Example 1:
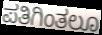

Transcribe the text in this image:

ಪತಿಗಿಂತಲೂ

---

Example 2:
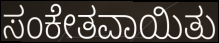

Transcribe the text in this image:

ಸಂಕೇತವಾಯಿತು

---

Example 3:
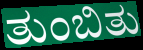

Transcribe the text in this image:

ತುಂಬಿತು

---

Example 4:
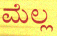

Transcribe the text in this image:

ಮೆಲ್ಲ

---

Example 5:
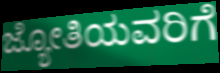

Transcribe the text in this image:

ಜ್ಯೋತಿಯವರಿಗೆ